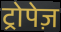
ट्रोपेज़